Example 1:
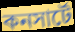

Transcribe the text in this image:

কনসার্টে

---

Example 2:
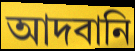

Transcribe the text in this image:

আদবানি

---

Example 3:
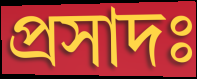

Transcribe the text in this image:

প্রসাদঃ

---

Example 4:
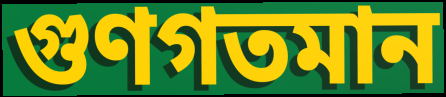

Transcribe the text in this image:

গুণগতমান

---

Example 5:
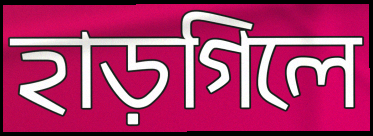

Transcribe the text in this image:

হাড়গিলে